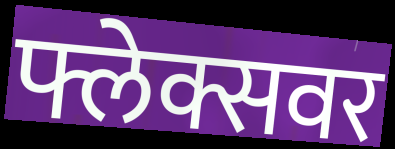
फ्लेक्सवर